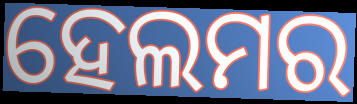
ହେଲମର